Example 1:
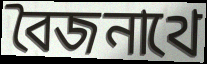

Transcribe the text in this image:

বৈজনাথে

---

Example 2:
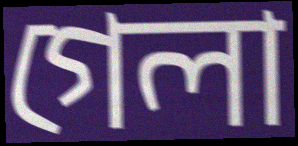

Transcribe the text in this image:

গেলা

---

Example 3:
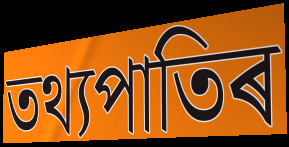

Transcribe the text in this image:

তথ্যপাতিৰ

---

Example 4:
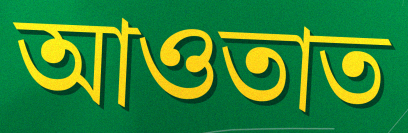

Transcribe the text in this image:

আওতাত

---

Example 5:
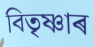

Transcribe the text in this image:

বিতৃষ্ণাৰ